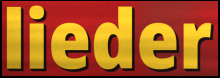
lieder